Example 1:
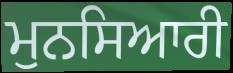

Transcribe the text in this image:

ਮੁਨਸਿਆਰੀ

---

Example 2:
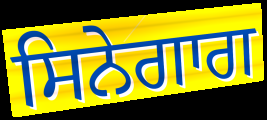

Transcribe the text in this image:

ਸਿਨੇਗਾਗ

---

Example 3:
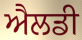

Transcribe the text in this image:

ਐਲਡੀ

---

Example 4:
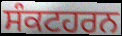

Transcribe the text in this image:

ਸੰਕਟਹਰਨ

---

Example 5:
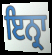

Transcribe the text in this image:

ਇਨ੍ਰਾ